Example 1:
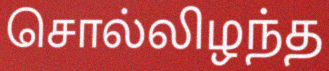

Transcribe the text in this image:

சொல்லிழந்த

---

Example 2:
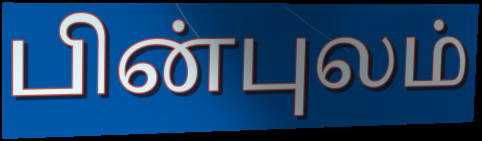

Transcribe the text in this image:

பின்புலம்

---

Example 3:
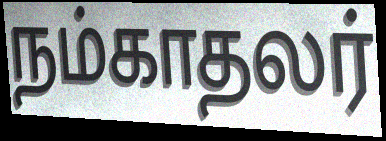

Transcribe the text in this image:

நம்காதலர்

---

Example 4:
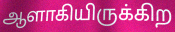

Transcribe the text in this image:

ஆளாகியிருக்கிற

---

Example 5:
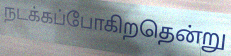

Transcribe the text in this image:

நடக்கப்போகிறதென்று